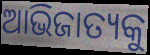
ଆଭିଜାତ୍ୟକୁ